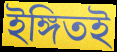
ইঙ্গিতই